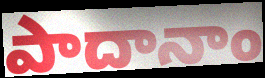
పాదానాం